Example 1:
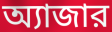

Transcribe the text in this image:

অ্যাজার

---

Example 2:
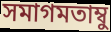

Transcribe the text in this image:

সমাগমতাম্বু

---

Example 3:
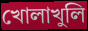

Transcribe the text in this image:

খোলাখুলি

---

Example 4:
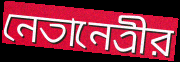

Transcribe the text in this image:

নেতানেত্রীর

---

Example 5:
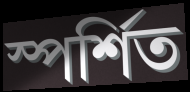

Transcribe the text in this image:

স্পর্শিত